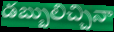
డబ్బులిచ్చినా